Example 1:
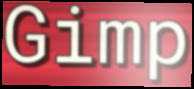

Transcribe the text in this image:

Gimp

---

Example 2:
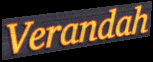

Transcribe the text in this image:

Verandah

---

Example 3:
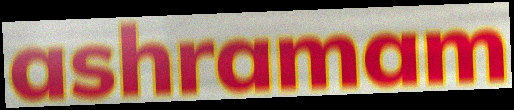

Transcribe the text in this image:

ashramam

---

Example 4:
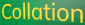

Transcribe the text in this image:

Collation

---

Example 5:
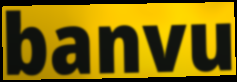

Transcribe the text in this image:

banvu